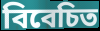
বিবেচিত